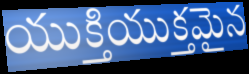
యుక్తియుక్తమైన